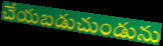
చేయబడుచుండును